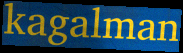
kagalman